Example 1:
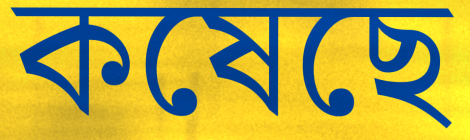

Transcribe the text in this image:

কষেছে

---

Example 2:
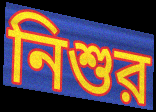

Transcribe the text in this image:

নিশুর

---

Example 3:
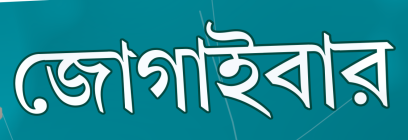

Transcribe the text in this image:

জোগাইবার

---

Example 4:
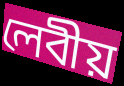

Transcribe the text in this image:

লেবীয়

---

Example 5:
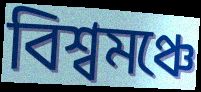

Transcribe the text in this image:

বিশ্বমঞ্চে